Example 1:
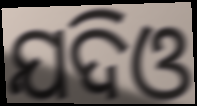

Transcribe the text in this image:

ଯଦିଓ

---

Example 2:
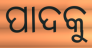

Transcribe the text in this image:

ପାଦକୁ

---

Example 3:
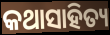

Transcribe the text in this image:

କଥାସାହିତ୍ୟ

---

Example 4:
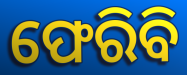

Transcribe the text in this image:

ଫେରିବି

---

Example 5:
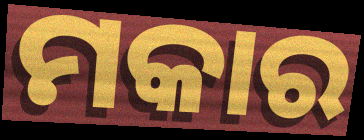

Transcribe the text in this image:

ମକାର